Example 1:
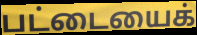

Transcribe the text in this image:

பட்டையைக்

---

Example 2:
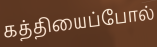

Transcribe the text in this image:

கத்தியைப்போல்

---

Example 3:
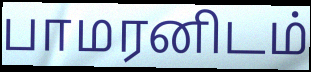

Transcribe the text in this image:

பாமரனிடம்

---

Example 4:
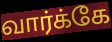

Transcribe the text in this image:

வார்க்கே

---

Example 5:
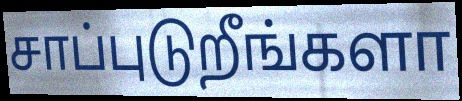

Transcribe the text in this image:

சாப்புடுறீங்களா